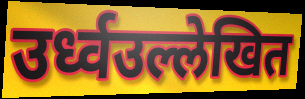
उर्ध्वउल्लेखित